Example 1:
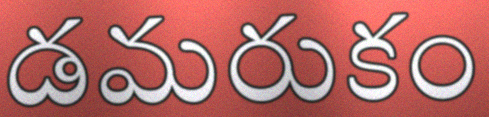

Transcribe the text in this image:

డమరుకం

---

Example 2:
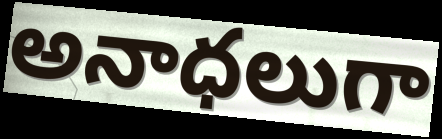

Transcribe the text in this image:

అనాధలుగా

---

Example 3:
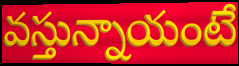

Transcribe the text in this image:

వస్తున్నాయంటే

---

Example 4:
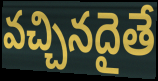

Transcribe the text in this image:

వచ్చినదైతే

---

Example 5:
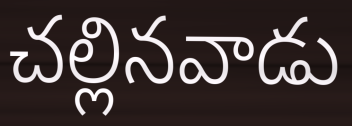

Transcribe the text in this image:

చల్లినవాడు